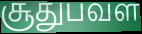
சூதுபவள